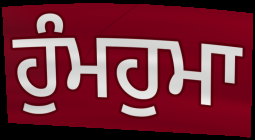
ਹੁੰਮਹੁਮਾ